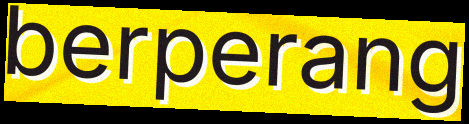
berperang